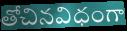
తోచినవిధంగా